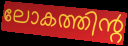
ലോകത്തിന്റ